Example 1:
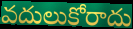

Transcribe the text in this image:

వదులుకోరాదు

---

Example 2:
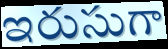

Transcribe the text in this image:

ఇరుసుగా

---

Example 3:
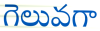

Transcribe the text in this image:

గెలువగా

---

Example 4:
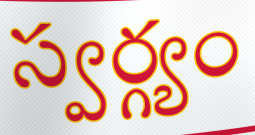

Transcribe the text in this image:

స్వర్గ్యం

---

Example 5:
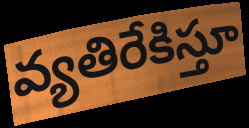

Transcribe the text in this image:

వ్యతిరేకిస్తూ